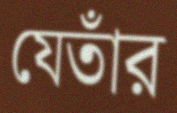
যেতাঁর